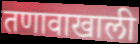
तणावाखाली